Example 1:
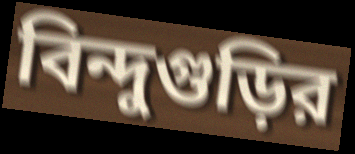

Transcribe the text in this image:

বিন্দুগুড়ির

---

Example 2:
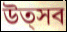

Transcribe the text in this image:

উত্সব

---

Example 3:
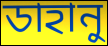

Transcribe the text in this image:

ডাহানু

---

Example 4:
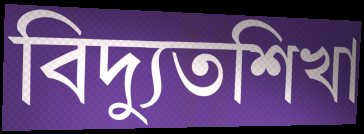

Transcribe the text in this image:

বিদ্যুতশিখা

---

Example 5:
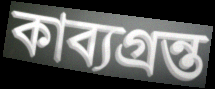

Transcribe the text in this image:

কাব্যগ্রন্ত